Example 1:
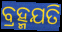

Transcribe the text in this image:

ବ୍ରହ୍ମଯତି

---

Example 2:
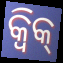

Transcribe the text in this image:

କ୍ୱିକ୍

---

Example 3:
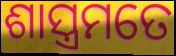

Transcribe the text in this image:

ଶାସ୍ତ୍ରମତେ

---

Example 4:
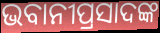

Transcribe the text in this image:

ଭବାନୀପ୍ରସାଦଙ୍କ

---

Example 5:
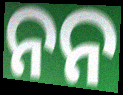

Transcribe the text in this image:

ନନ